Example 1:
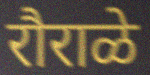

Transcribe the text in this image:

रौराळे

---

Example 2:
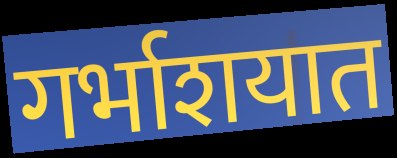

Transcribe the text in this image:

गर्भाशयात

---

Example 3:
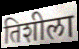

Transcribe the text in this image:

तिशीला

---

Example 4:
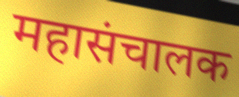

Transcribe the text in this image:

महासंचालक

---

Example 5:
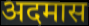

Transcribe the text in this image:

अदमास